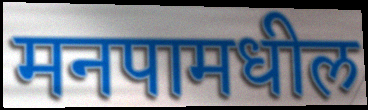
मनपामधील